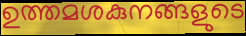
ഉത്തമശകുനങ്ങളുടെ